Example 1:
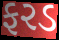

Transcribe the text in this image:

ફરડ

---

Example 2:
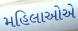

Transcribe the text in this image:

મહિલાઓએ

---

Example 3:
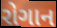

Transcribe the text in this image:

રોગાન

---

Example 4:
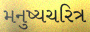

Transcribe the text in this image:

મનુષ્યચરિત્ર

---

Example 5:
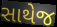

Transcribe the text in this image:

સાથેજ